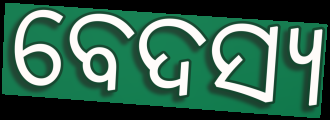
ବେଦସ୍ୟ